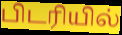
பிடரியில்